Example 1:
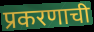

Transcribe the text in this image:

प्रकरणाची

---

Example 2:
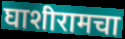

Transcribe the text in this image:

घाशीरामचा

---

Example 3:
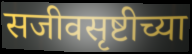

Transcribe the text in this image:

सजीवसृष्टीच्या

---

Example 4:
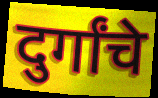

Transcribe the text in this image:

दुर्गांचे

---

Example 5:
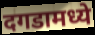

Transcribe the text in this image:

दगडामध्ये